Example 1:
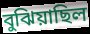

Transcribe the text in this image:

বুঝিয়াছিল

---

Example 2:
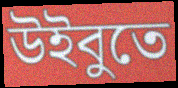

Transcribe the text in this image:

উইবুতে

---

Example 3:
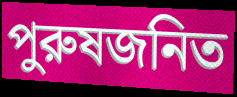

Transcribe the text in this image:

পুরুষজনিত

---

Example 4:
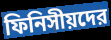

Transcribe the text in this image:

ফিনিসীয়দের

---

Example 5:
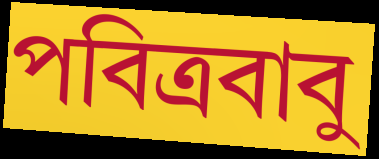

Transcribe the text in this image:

পবিত্রবাবু